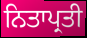
ਨਿਤਾਪ੍ਰਤੀ